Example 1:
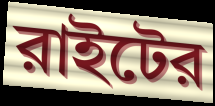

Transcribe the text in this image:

রাইটের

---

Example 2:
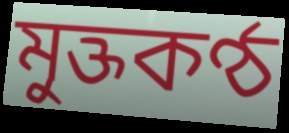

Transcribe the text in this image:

মুক্তকণ্ঠ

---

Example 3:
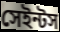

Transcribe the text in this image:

সেইন্টস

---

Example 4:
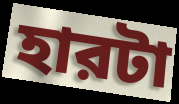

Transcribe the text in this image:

হারটা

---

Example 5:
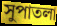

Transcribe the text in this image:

সুপাতলা